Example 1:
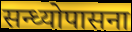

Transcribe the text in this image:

सन्ध्योपासना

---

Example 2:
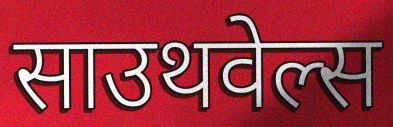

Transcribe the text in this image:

साउथवेल्स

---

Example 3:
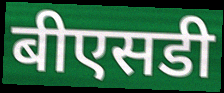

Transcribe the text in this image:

बीएसडी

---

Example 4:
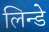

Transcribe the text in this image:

लिन्डे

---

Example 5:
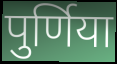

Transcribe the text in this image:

पुर्णिया